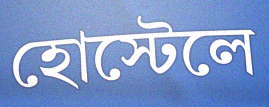
হোস্টেলে